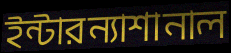
ইন্টারন্যাশানাল